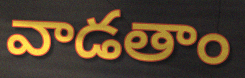
వాడతాం